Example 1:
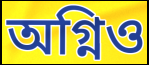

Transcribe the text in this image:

অগ্নিও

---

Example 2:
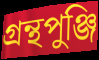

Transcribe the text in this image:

গ্রন্থপুঞ্জি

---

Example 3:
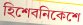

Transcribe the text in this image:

হিশেবনিকেশে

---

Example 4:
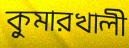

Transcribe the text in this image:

কুমারখালী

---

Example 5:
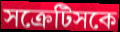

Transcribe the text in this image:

সক্রেটিসকে